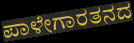
ಪಾಳೇಗಾರತನದ